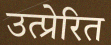
उत्‍प्रेरित